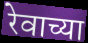
रेवाच्या